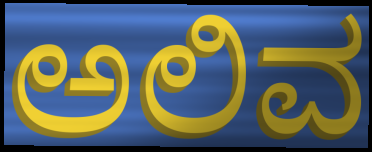
ಅಲಿವ